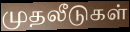
முதலீடுகள்